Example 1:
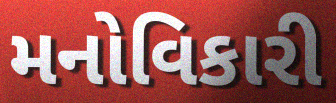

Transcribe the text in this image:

મનોવિકારી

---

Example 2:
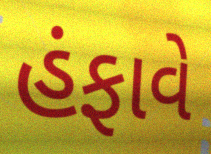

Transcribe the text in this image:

હંફાવે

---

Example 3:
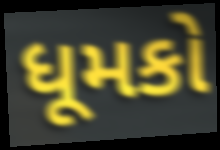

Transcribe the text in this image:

ધૂમકો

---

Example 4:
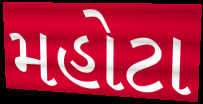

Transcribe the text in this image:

મહોટા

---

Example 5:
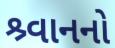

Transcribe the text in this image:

શ્ર્વાનનો